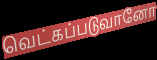
வெட்கப்படுவானோ